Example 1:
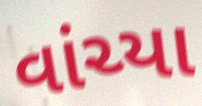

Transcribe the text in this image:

વાંચ્યા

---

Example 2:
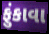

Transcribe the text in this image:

ફુંકાવા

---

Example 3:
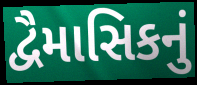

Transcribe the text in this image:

દ્વૈમાસિકનું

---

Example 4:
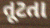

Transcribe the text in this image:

તૂટતા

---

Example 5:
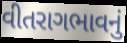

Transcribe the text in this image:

વીતરાગભાવનું